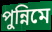
পুন্নিমে